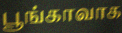
பூங்காவாக